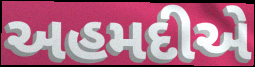
અહમદીએ